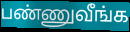
பண்ணுவீங்க